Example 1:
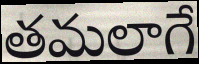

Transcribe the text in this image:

తమలాగే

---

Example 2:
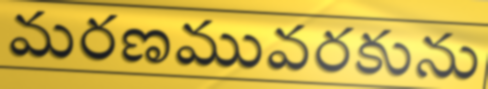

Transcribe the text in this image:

మరణమువరకును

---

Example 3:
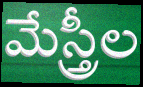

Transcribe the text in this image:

మేస్త్రీల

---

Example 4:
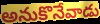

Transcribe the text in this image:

అనుకొనేవాడు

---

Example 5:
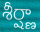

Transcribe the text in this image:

శీర్ష్ణా